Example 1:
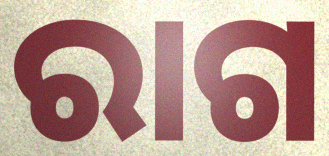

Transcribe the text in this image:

ରାଗ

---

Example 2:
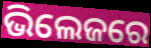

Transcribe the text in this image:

ଭିଲେଜରେ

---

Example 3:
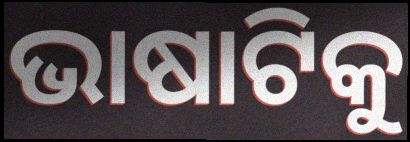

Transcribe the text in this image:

ଭାଷାଟିକୁ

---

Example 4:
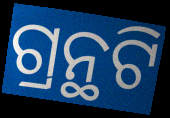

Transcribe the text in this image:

ଗ୍ରନ୍ଥଟି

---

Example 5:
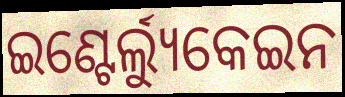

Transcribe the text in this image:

ଇଣ୍ଟେର୍ଲ୍ୟୁକେଇନ